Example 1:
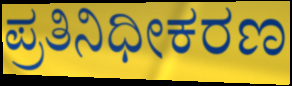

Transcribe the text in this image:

ಪ್ರತಿನಿಧೀಕರಣ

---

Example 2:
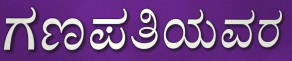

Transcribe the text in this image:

ಗಣಪತಿಯವರ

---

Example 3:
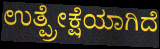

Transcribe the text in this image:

ಉತ್ಪ್ರೇಕ್ಷೆಯಾಗಿದೆ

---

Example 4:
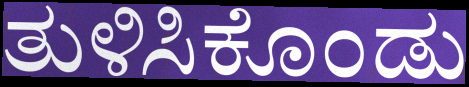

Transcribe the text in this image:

ತುಳಿಸಿಕೊಂಡು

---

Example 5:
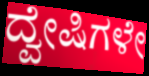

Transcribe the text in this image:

ದ್ವೇಷಿಗಳೇ